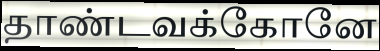
தாண்டவக்கோனே